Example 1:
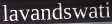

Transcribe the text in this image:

lavandswati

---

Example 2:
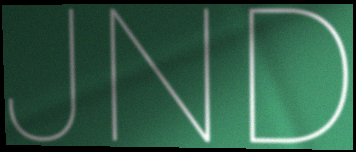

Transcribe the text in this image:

JND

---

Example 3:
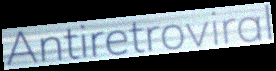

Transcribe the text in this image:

Antiretroviral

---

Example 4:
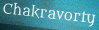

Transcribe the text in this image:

Chakravorty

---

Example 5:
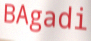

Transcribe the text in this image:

BAgadi